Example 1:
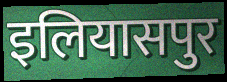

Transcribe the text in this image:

इलियासपुर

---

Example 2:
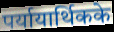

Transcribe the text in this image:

पर्यायार्थिकके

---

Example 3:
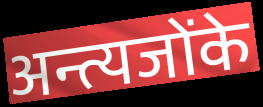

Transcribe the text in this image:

अन्त्यजोंके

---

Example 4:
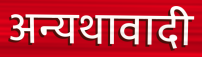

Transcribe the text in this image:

अन्यथावादी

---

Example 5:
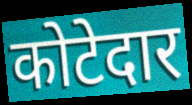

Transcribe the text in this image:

कोटेदार